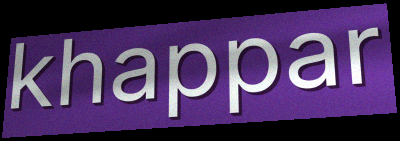
khappar